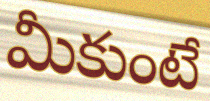
మీకుంటే